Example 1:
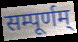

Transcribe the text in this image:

सम्पूर्णम्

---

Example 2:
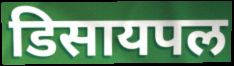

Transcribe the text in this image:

डिसायपल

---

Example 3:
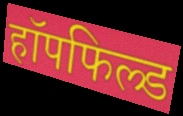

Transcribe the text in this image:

हॉपफिल्ड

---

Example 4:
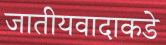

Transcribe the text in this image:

जातीयवादाकडे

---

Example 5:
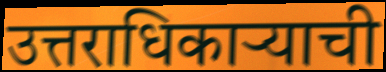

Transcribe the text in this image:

उत्तराधिकाऱ्याची